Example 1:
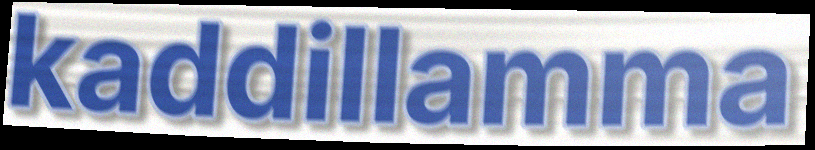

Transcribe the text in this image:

kaddillamma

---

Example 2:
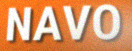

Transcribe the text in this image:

NAVO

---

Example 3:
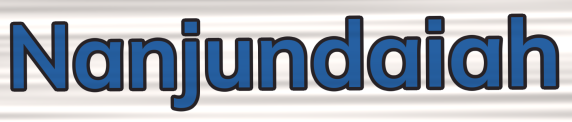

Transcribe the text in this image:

Nanjundaiah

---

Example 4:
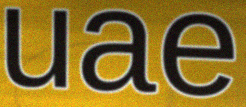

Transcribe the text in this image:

uae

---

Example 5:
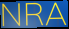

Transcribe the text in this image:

NRA